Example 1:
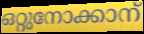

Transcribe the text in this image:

ഒറ്റുനോക്കാന്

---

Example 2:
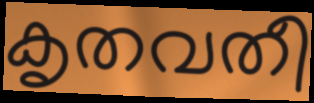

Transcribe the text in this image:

കൃതവതീ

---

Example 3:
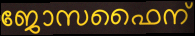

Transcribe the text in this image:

ജോസഫൈന്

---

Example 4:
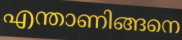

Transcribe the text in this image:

എന്താണിങ്ങനെ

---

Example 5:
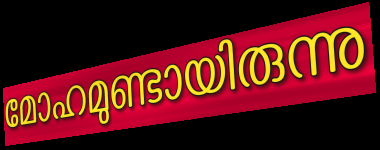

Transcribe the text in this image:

മോഹമുണ്ടായിരുന്നു